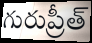
గురుప్రీత్